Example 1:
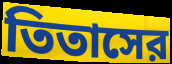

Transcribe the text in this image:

তিতাসের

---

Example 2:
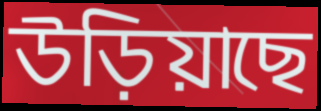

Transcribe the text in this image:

উড়িয়াছে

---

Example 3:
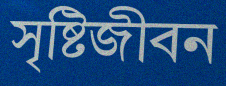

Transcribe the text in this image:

সৃষ্টিজীবন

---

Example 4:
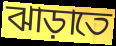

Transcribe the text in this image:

ঝাড়াতে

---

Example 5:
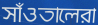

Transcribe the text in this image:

সাঁওতালেরা